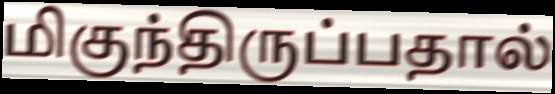
மிகுந்திருப்பதால்